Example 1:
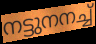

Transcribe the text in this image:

നട്ടുനനച്ച്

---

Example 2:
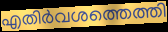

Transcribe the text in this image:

എതിർവശത്തെത്തി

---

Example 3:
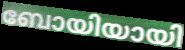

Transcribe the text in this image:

ബോയിയായി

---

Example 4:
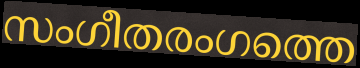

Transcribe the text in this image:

സംഗീതരംഗത്തെ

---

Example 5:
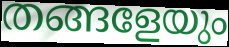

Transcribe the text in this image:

തങ്ങളേയും